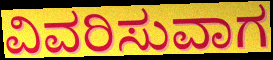
ವಿವರಿಸುವಾಗ